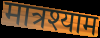
मात्रश्याम